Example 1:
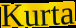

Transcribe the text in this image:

Kurta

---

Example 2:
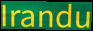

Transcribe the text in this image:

Irandu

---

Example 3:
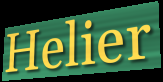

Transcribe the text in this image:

Helier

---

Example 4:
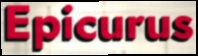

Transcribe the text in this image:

Epicurus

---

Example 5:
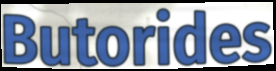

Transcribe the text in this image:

Butorides